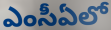
ఎంసీఏలో